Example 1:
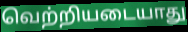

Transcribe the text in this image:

வெற்றியடையாது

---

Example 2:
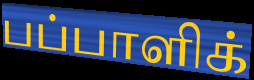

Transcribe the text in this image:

பப்பாளிக்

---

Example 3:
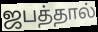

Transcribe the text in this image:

ஜபத்தால்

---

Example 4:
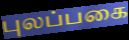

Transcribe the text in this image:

புலப்பகை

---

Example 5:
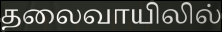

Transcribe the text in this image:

தலைவாயிலில்